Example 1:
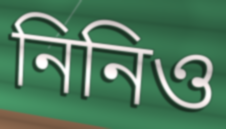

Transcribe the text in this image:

নিনিও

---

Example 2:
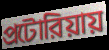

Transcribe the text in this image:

প্রটোরিয়ায়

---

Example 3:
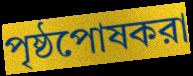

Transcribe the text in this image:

পৃষ্ঠপোষকরা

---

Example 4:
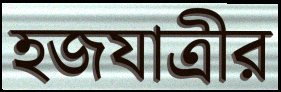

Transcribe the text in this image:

হজযাত্রীর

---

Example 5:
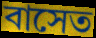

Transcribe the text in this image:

বাসেত